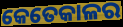
କେତେକାଳର